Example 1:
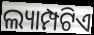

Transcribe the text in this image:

ଲ୍ୟାମ୍ପଟିଏ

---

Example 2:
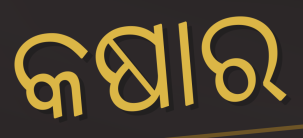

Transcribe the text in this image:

କଷାର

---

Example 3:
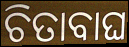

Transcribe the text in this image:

ଚିତାବାଘ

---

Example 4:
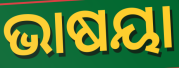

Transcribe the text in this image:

ଭାଷୟା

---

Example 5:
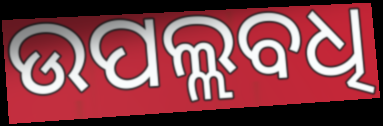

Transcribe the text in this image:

ଉପଲ୍ଲବଧି